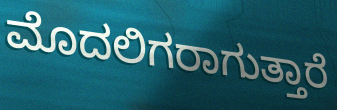
ಮೊದಲಿಗರಾಗುತ್ತಾರೆ